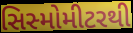
સિસ્મોમીટરથી